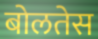
बोलतेस